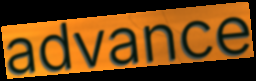
advance